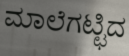
ಮಾಲೆಗಟ್ಟಿದ